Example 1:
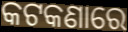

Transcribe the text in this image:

କଟକଣାରେ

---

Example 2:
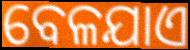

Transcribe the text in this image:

ବେଳଯାଏ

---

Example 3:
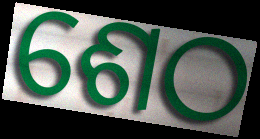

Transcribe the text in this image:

ଶେଠ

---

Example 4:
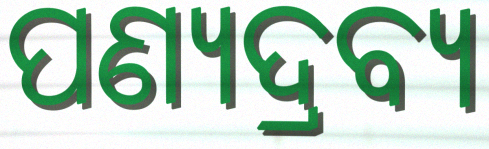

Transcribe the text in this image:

ପଣ୍ୟଦ୍ରବ୍ୟ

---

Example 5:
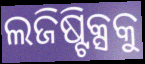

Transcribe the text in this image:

ଲଜିଷ୍ଟିକ୍ସକୁ